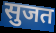
सुजत